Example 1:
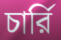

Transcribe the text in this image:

চার্রি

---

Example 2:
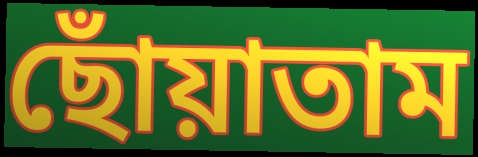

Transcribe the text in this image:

ছোঁয়াতাম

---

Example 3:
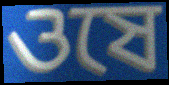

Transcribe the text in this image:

ওষে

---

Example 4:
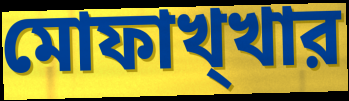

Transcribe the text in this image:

মোফাখ্খার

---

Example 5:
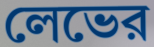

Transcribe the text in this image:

লেভের